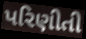
પરિણીતી